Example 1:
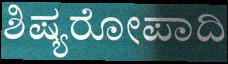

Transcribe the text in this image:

ಶಿಷ್ಯರೋಪಾದಿ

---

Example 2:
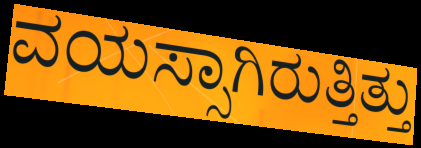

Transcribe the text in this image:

ವಯಸ್ಸಾಗಿರುತ್ತಿತ್ತು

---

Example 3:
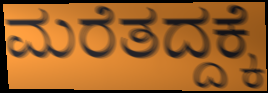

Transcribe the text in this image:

ಮರೆತದ್ದಕ್ಕೆ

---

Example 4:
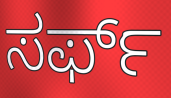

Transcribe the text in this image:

ಸರ್ಫ್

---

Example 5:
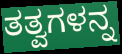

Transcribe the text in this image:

ತತ್ವಗಳನ್ನ